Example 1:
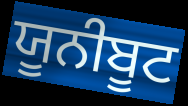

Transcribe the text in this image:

ਯੂਨੀਬੂਟ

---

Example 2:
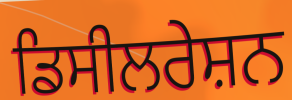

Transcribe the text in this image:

ਡਿਸੀਲਰੇਸ਼ਨ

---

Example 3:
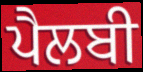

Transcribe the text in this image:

ਪੈਲਬੀ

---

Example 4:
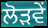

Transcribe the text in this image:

ਲੋੜਵੇਂ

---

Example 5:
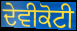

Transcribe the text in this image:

ਦੇਵੀਕੋਟੀ